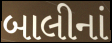
બાલીનાં